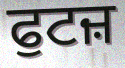
ਫੁਟਜ਼